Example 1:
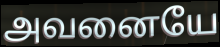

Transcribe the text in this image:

அவனையே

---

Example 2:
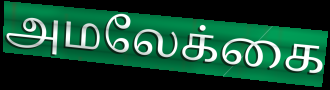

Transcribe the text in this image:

அமலேக்கை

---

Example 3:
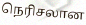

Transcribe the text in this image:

நெரிசலான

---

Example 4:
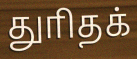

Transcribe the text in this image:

துரிதக்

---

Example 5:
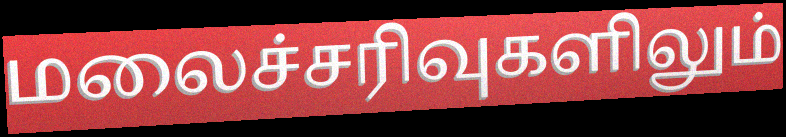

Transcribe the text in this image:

மலைச்சரிவுகளிலும்